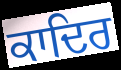
ਕਾਦਿਰ